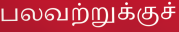
பலவற்றுக்குச்